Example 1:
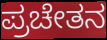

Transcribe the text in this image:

ಪ್ರಚೇತನ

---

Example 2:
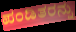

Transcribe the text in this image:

ಪಂಡಿತರನ್ನು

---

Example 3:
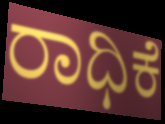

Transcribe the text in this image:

ರಾಧಿಕೆ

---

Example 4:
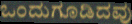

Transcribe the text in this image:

ಒಂದುಗೂಡಿದವು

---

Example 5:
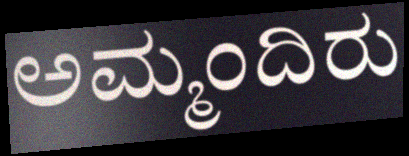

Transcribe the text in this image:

ಅಮ್ಮಂದಿರು